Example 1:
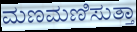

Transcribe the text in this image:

ಮಣಮಣಿಸುತ್ತಾ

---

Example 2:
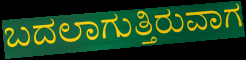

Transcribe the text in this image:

ಬದಲಾಗುತ್ತಿರುವಾಗ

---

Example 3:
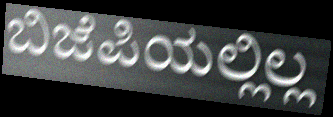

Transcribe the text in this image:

ಬಿಜೆಪಿಯಲ್ಲಿಲ್ಲ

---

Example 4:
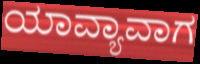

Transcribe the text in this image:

ಯಾವ್ಯಾವಾಗ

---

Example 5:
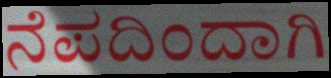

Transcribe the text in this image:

ನೆಪದಿಂದಾಗಿ